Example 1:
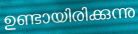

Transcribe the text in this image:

ഉണ്ടായിരിക്കുന്നു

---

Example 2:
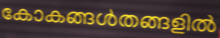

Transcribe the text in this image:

കോകങ്ങൾതങ്ങളിൽ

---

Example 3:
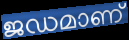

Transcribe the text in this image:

ജഡമാണ്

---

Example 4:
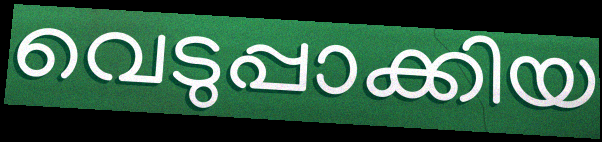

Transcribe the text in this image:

വെടുപ്പാക്കിയ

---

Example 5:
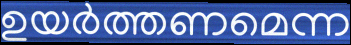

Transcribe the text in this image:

ഉയർത്തണമെന്ന